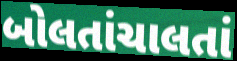
બોલતાંચાલતાં